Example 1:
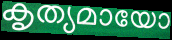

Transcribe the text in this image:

കൃത്യമായോ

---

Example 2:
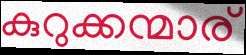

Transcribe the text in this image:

കുറുക്കന്മാര്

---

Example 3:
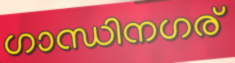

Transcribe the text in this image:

ഗാന്ധിനഗര്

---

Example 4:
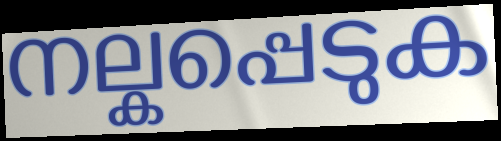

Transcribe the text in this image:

നല്കപ്പെടുക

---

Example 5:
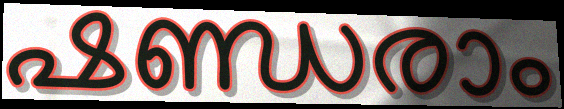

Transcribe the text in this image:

ഷണ്ഡരാം